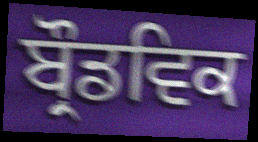
ਬ੍ਰੌਡਵਿਕ